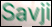
Savji